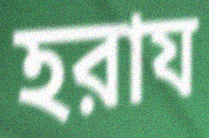
হরায